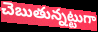
చెబుతున్నట్టుగా